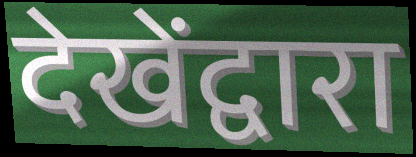
देखेंद्वारा